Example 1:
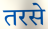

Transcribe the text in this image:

तरसे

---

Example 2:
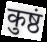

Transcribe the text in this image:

कुष्ठं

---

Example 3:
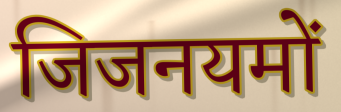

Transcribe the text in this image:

जिजनयमों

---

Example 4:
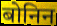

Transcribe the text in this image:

बोनिन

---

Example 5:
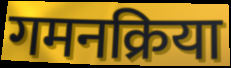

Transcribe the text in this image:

गमनक्रिया